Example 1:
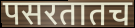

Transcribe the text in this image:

पसरतातच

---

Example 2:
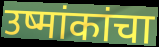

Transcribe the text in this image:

उष्मांकांचा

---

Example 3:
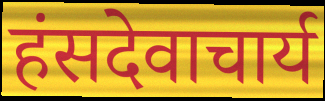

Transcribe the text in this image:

हंसदेवाचार्य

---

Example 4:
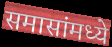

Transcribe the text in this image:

समासांमध्ये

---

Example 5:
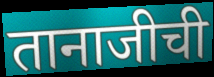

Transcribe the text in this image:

तानाजीची